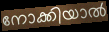
നോക്കിയാൽ